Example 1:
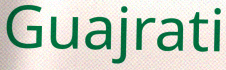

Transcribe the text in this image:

Guajrati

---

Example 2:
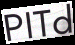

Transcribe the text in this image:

PITd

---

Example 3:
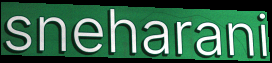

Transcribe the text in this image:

sneharani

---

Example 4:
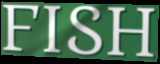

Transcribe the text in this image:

FISH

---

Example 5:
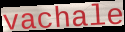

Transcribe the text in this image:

vachale